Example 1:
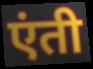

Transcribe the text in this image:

एंती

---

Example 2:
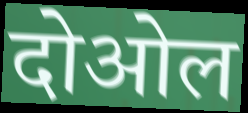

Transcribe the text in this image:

दोओल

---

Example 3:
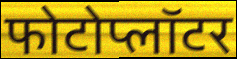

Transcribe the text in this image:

फोटोप्लॉटर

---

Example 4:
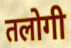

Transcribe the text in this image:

तलोगी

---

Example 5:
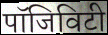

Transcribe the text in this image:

पॉजिविटी